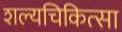
शल्‍यचिकित्‍सा